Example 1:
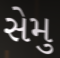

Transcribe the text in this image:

સેમુ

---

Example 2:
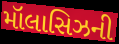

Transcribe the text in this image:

મૉલાસિઝની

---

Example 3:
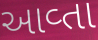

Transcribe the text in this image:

આવ્તા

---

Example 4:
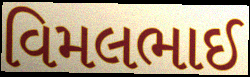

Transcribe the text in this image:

વિમલભાઈ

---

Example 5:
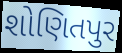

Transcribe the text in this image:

શોણિતપુર